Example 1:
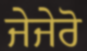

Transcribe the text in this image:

ਜੇਜੇਰੋ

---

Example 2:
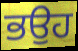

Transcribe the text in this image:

ਭਉਹ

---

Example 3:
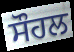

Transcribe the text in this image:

ਸੌਹਲ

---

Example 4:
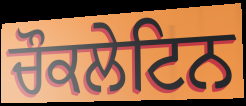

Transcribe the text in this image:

ਚੌਕਲੇਟਿਨ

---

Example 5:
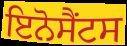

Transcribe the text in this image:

ਇਨੋਸੈਂਟਸ